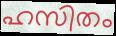
ഹസിതം